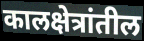
कालक्षेत्रांतील